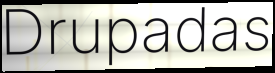
Drupadas